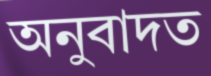
অনুবাদত